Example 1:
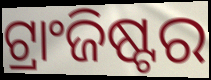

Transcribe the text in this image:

ଟ୍ରାଂଜିଷ୍ଟର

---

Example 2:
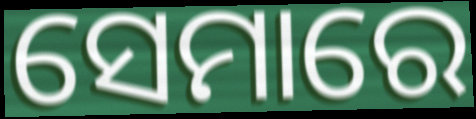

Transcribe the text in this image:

ସେମାରେ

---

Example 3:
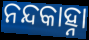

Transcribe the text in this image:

ନନ୍ଦକାହ୍ନା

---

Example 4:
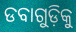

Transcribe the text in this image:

ଡବାଗୁଡ଼ିକୁ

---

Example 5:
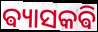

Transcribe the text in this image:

ଵ୍ୟାସକଵି